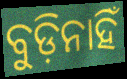
ବୁଡ଼ିନାହିଁ